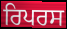
ਰਿਪਰਸ